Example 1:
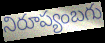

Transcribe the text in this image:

నిరూప్యంబగు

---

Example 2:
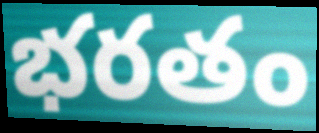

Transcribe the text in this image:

భరతం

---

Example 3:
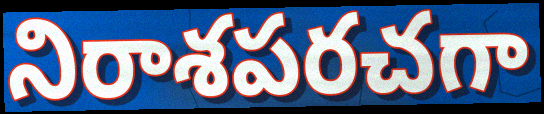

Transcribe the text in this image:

నిరాశపరచగా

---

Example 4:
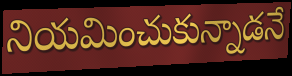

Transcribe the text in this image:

నియమించుకున్నాడనే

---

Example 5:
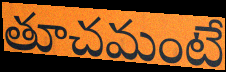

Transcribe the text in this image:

తూచమంటే